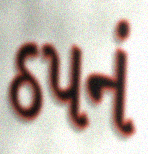
ઠપનં